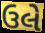
ઉલે